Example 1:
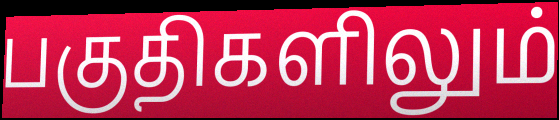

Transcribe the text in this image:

பகுதிகளிலும்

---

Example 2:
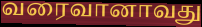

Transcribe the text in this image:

வரைவானாவது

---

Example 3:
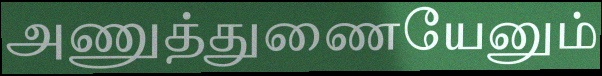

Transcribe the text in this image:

அணுத்துணையேனும்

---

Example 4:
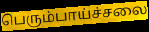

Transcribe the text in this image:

பெரும்பாய்ச்சலை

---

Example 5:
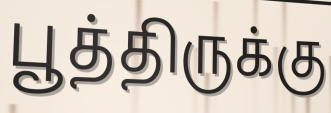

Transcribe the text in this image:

பூத்திருக்கு